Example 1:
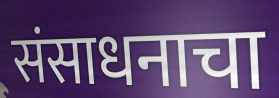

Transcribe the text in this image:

संसाधनाचा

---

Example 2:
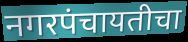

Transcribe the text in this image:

नगरपंचायतीचा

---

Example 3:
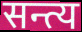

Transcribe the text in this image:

सन्त्य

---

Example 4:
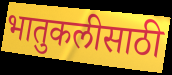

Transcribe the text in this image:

भातुकलीसाठी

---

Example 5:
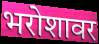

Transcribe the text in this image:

भरोशावर